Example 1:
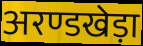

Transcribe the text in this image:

अरण्डखेड़ा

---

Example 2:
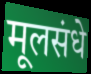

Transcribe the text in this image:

मूलसंधे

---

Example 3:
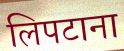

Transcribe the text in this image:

लिपटाना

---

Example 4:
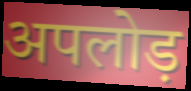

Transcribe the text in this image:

अपलोड़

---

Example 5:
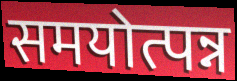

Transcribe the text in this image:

समयोत्पन्न